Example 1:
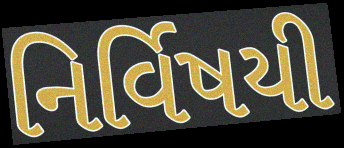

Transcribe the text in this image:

નિર્વિષયી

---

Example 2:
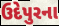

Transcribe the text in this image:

ઉદેપુરના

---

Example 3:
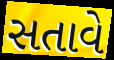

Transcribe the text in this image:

સતાવે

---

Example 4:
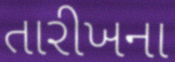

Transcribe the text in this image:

તારીખના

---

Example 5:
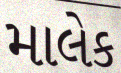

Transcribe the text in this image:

માલેક